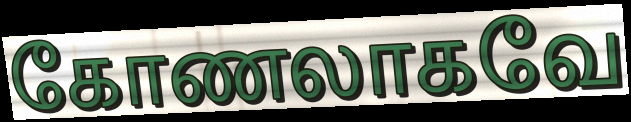
கோணலாகவே